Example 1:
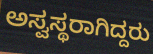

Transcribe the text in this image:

ಅಸ್ವಸ್ಥರಾಗಿದ್ದರು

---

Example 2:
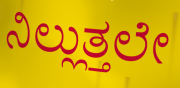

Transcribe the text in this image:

ನಿಲ್ಲುತ್ತಲೇ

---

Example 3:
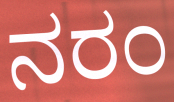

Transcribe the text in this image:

ನರಂ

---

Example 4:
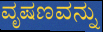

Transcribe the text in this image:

ವೃಷಣವನ್ನು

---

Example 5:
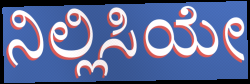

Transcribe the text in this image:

ನಿಲ್ಲಿಸಿಯೇ